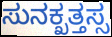
ಸುನಕ್ಖತ್ತಸ್ಸ